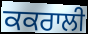
ਕਕਰਾਲੀ